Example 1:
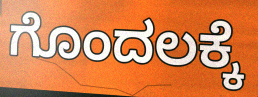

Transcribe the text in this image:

ಗೊಂದಲಕ್ಕೆ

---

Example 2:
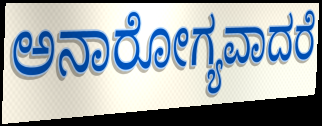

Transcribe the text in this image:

ಅನಾರೋಗ್ಯವಾದರೆ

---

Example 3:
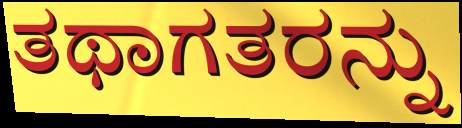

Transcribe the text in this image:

ತಥಾಗತರನ್ನು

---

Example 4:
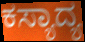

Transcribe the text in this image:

ಕಸ್ಯಾದ್ಯ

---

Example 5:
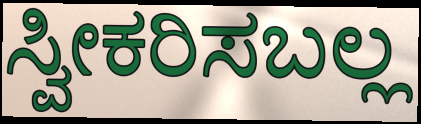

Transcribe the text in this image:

ಸ್ವೀಕರಿಸಬಲ್ಲ